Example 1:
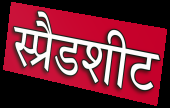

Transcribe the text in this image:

स्प्रैडशीट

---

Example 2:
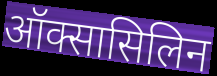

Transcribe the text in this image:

ऑक्सासिलिन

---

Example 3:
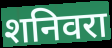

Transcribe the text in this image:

शनिवरा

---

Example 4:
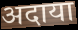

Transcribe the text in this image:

अदाया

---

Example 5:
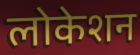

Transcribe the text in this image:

लोकेशन